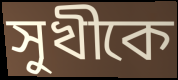
সুখীকে